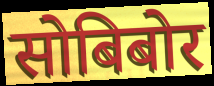
सोबिबोर